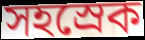
সহস্রেক